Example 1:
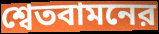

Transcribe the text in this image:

শ্বেতবামনের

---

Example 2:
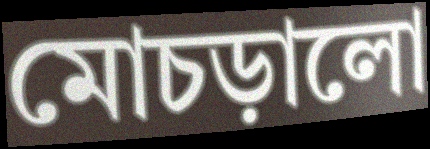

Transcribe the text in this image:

মোচড়ালো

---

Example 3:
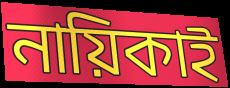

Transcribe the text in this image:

নায়িকাই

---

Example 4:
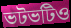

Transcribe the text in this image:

ভটভটিও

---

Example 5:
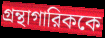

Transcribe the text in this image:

গ্রন্থাগারিককে